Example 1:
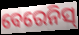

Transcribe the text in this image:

ବେରେନିସ୍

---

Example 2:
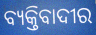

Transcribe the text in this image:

ବ୍ୟକ୍ତିବାଦୀର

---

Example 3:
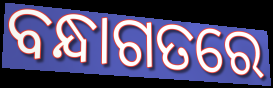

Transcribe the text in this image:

ବନ୍ଧାଗତରେ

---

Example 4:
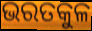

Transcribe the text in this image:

ଭରତକୁଳ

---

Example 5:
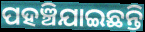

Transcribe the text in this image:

ପହଞ୍ଚିଯାଇଛନ୍ତି